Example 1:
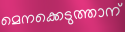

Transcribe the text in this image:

മെനക്കെടുത്താന്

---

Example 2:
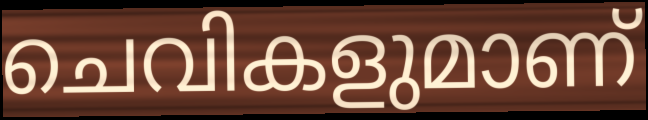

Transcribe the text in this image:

ചെവികളുമാണ്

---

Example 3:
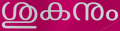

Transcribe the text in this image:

ശുകനും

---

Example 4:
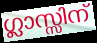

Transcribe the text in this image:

ഗ്ലാസ്സിന്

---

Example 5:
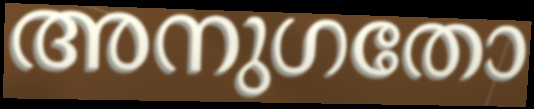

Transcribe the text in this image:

അനുഗതോ